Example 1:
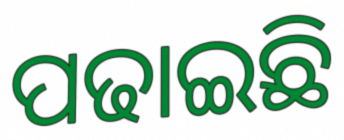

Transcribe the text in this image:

ପଢାଇଛି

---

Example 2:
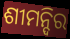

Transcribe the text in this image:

ଶୀମନ୍ଦିର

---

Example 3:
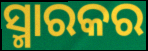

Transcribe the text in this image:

ସ୍ମାରକର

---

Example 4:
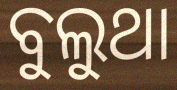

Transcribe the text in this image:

ବୁଲୁଥା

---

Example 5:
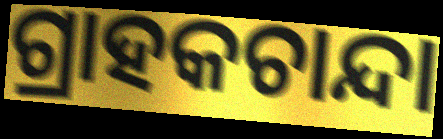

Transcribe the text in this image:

ଗ୍ରାହକଚାନ୍ଦା